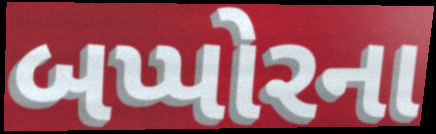
બપ્પોરના